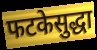
फटकेसुद्धा